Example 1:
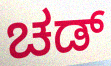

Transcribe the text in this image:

ಚಡ್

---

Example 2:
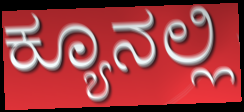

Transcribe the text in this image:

ಕ್ಯೂನಲ್ಲಿ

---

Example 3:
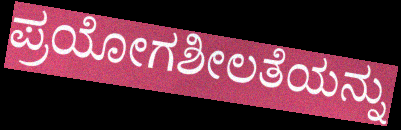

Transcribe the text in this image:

ಪ್ರಯೋಗಶೀಲತೆಯನ್ನು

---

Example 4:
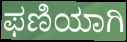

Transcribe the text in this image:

ಫಣಿಯಾಗಿ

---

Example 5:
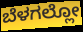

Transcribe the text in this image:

ಬೆಳಗಲ್ಲೋ